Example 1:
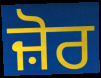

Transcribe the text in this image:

ਜ਼ੋਰ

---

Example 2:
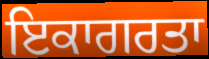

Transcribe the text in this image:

ਇਕਾਗਰਤਾ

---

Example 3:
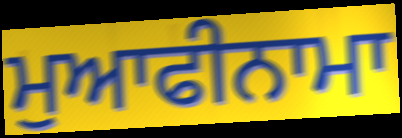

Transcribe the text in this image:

ਮੁਆਫੀਨਾਮਾ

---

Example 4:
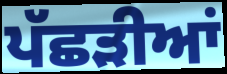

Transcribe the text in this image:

ਪੱਛੜੀਆਂ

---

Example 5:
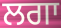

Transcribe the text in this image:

ਲਗਾ